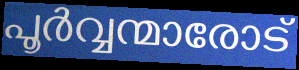
പൂർവ്വന്മാരോട്